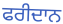
ਫਰੀਦਾਨ